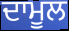
ਦਾਮੂਲ